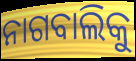
ନାଗବାଲିକୁ